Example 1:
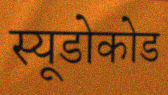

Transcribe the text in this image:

स्यूडोकोड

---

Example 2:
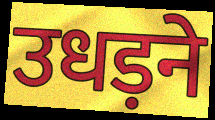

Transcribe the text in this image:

उधड़ने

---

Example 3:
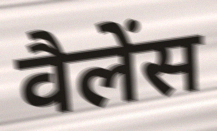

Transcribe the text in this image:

वैलेंस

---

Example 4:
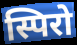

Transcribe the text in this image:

स्पिरो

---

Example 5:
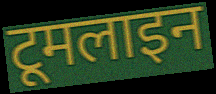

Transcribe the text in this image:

टूमलाइन